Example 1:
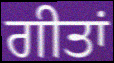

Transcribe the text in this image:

ਗੀਤਾਂ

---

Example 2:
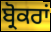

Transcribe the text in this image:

ਬ੍ਰੋਕਰਾਂ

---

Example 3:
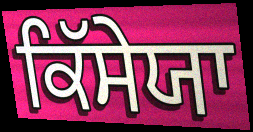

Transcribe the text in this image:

ਕਿੱਸੇਯਾ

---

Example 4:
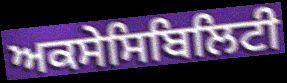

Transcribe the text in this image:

ਅਕਸੇਸਿਬਿਲਿਟੀ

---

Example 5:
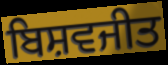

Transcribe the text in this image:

ਬਿਸ਼ਵਜੀਤ